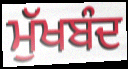
ਮੁੱਖਬੰਦ